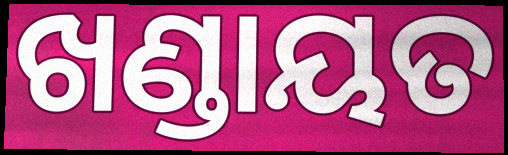
ଖଣ୍ଡାୟତ